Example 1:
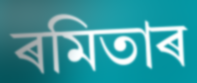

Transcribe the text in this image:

ৰমিতাৰ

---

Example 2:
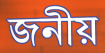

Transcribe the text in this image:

জনীয়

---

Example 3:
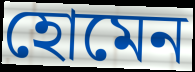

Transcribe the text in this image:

হোমেন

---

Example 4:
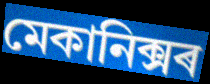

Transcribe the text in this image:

মেকানিক্সৰ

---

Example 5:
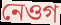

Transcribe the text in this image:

নেওগ